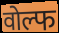
वोल्फ